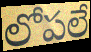
లోపలే